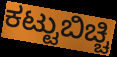
ಕಟ್ಟುಬಿಚ್ಚಿ